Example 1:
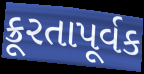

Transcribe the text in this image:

ક્રૂરતાપૂર્વક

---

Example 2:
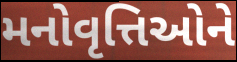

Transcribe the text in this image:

મનોવૃત્તિઓને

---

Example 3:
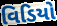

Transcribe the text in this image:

વિડિયો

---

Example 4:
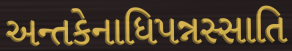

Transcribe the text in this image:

અન્તકેનાધિપન્નસ્સાતિ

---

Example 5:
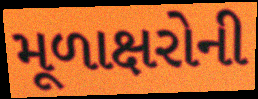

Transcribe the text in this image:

મૂળાક્ષરોની